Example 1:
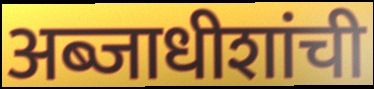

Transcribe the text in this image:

अब्जाधीशांची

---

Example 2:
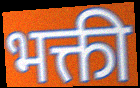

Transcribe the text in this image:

भक्ती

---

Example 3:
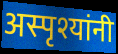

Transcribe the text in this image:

अस्पृश्यांनी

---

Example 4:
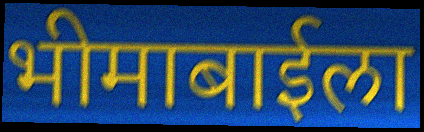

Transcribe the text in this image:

भीमाबाईला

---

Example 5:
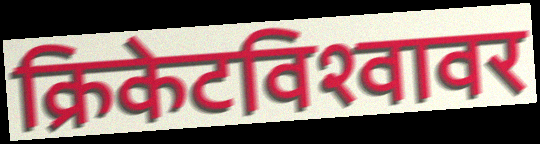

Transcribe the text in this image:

क्रिकेटविश्वावर